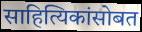
साहित्यिकांसोबत